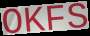
OKFS